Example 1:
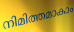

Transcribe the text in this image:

നിമിത്തമാകാം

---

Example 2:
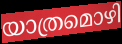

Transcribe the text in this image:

യാത്രമൊഴി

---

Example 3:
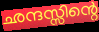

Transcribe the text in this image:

ഛന്ദസ്സിന്റെ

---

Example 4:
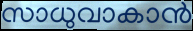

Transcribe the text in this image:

സാധുവാകാൻ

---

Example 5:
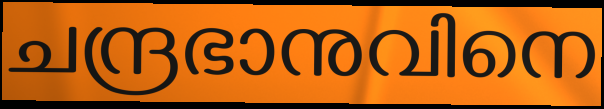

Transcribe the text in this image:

ചന്ദ്രഭാനുവിനെ